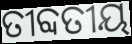
ତୀବ୍ଦତୀୟ